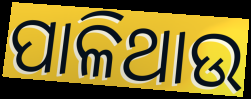
ପାଳିଥାଉ